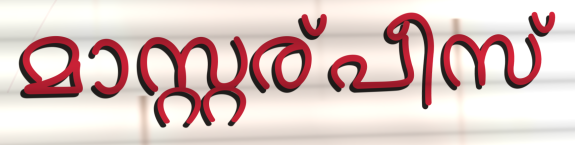
മാസ്റ്റര്പീസ്